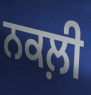
ਨਕਲ਼ੀ